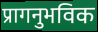
प्रागनुभविक